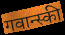
गवान्स्की